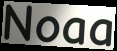
Noaa